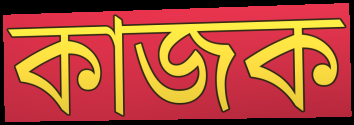
কাজক